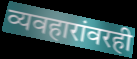
व्यवहारांवरही